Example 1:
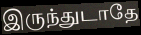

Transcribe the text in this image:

இருந்துடாதே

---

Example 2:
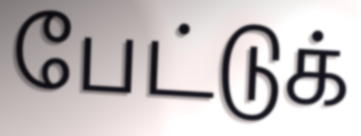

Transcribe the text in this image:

பேட்டுக்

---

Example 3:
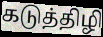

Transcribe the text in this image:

கடுத்திழி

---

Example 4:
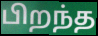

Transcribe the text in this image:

பிறந்த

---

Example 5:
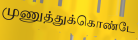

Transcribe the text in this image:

முணுத்துக்கொண்டே